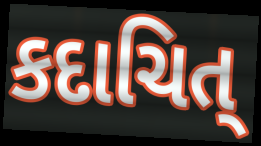
કદાચિત્